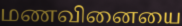
மணவினையை